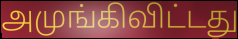
அமுங்கிவிட்டது